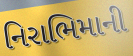
નિરાભિમાની